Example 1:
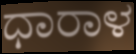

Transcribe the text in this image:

ಧಾರಾಳ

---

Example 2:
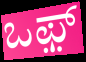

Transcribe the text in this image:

ಒಫ಼್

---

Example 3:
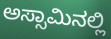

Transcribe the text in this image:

ಅಸ್ಸಾಮಿನಲ್ಲಿ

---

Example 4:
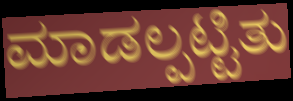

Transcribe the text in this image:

ಮಾಡಲ್ಪಟ್ಟಿತು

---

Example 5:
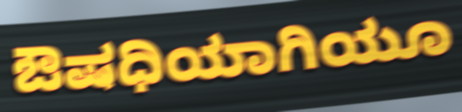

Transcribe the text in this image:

ಔಷಧಿಯಾಗಿಯೂ